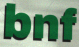
bnf